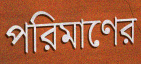
পরিমাণের